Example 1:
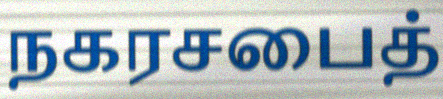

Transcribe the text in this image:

நகரசபைத்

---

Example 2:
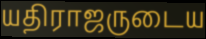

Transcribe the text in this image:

யதிராஜருடைய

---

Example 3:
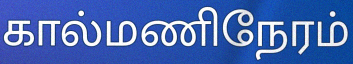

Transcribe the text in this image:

கால்மணிநேரம்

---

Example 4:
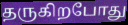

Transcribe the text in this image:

தருகிறபோது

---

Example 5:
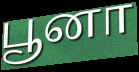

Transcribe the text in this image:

பூனா